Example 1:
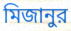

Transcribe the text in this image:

মিজানুর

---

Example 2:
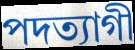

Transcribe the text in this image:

পদত্যাগী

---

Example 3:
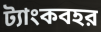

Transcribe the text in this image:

ট্যাংকবহর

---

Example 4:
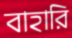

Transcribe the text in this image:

বাহারি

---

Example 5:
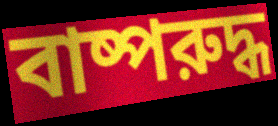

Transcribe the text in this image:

বাষ্পরুদ্ধ